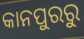
କାନପୁରରୁ